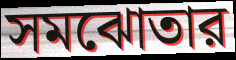
সমঝোতার